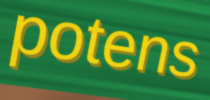
potens